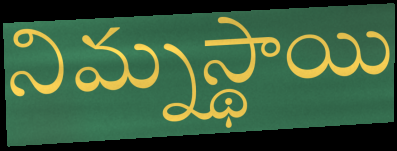
నిమ్నస్థాయి